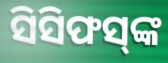
ସିସିଫସ୍‌ଙ୍କ